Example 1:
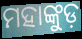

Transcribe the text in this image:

ମହାଙ୍କୁଡ଼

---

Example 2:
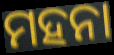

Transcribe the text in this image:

ମହନା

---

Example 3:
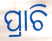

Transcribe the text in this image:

ପ୍ରାଚି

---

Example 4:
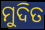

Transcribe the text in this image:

ମୁଦିତ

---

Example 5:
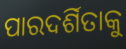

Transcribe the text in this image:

ପାରଦର୍ଶିତାକୁ